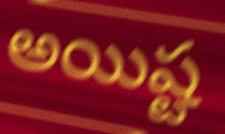
అయిష్ట